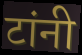
टांनी